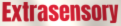
Extrasensory